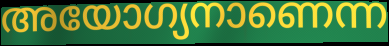
അയോഗ്യനാണെന്ന